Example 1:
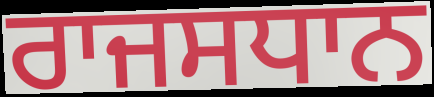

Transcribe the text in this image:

ਰਾਜਸਧਾਨ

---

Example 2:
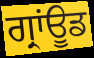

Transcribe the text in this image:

ਗ੍ਰਾਂਊਡ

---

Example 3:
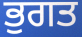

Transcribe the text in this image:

ਭੁਗਤ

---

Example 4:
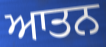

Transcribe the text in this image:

ਆਤਨ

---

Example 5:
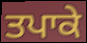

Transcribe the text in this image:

ਤਪਾਕੇ